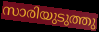
സാരിയുടുത്തു